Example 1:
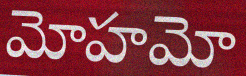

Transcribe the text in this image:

మోహమో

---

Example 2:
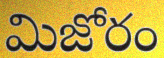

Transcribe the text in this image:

మిజోరం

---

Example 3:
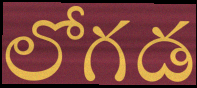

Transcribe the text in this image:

లోగడ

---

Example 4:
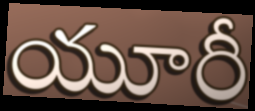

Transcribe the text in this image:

యూరీ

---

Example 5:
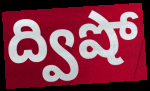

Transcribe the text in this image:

ద్విషో